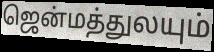
ஜென்மத்துலயும்